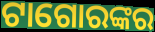
ଟାଗୋରଙ୍କର